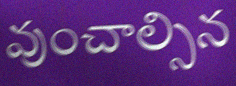
వుంచాల్సిన